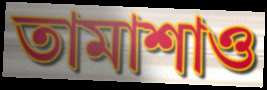
তামাশাও